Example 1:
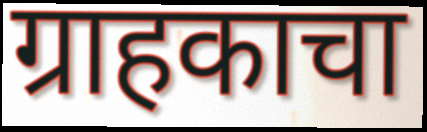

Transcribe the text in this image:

ग्राहकाचा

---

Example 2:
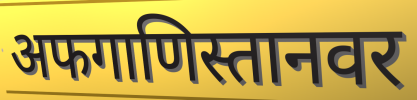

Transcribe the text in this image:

अफगाणिस्तानवर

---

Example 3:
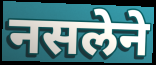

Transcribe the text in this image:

नसलेने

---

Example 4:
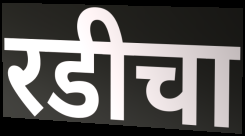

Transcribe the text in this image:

रडीचा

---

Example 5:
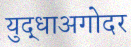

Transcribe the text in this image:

युद्धाअगोदर